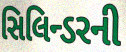
સિલિન્ડરની